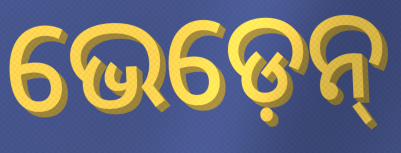
ଭେଡ଼େନ୍